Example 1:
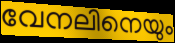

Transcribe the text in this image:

വേനലിനെയും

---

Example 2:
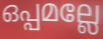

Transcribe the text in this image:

ഒപ്പമല്ലേ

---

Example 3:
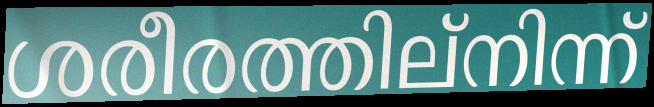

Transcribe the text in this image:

ശരീരത്തില്നിന്ന്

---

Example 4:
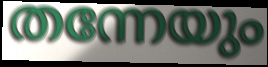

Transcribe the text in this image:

തന്നേയും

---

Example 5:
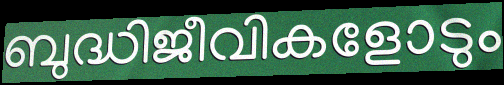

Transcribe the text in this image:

ബുദ്ധിജീവികളോടും